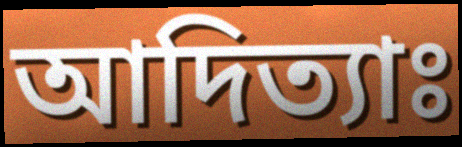
আদিত্যাঃ